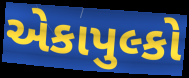
એકાપુલ્કો